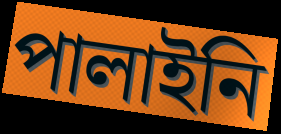
পালাইনি